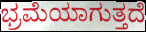
ಭ್ರಮೆಯಾಗುತ್ತದೆ